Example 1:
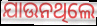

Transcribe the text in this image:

ଯାଉନଥିଲେ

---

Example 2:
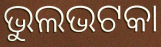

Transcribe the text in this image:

ଭୁଲଭଟକା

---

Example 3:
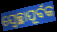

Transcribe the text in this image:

ସ୍ଵେଚ୍ଛାପୂର୍ବକ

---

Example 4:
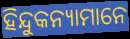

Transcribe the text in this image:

ହିନ୍ଦୁକନ୍ୟାମାନେ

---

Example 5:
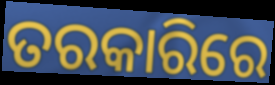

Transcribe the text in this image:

ତରକାରିରେ